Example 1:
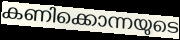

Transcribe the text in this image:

കണിക്കൊന്നയുടെ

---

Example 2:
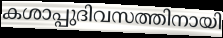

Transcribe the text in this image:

കശാപ്പുദിവസത്തിനായി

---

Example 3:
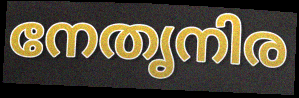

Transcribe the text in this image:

നേതൃനിര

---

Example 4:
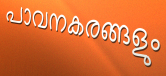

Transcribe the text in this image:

പാവനകരങ്ങളും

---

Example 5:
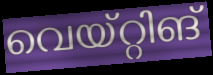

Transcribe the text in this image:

വെയ്റ്റിങ്